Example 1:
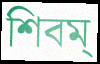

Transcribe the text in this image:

শিবম্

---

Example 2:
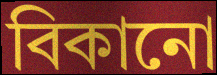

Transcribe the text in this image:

বিকানো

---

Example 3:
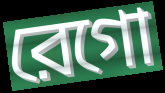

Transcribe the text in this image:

রেগো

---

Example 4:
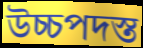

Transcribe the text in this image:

উচ্চপদস্ত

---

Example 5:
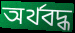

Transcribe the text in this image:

অর্থবদ্ধ